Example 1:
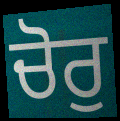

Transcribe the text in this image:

ਚੋਰੁ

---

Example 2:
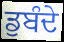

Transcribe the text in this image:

ਡੁਬੰਦੇ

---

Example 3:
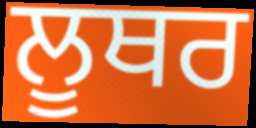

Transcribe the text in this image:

ਲੂਥਰ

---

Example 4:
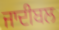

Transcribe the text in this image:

ਜਾਦੀਬਲ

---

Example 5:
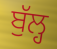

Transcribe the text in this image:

ਬੁੱਲ੍ਹ